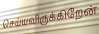
செய்யவிருக்கிறேன்